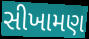
સીખામણ